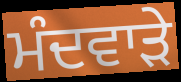
ਮੰਦਵਾੜੇ